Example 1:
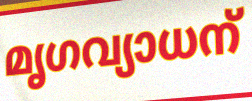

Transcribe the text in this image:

മൃഗവ്യാധന്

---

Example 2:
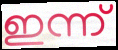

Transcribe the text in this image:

ഇന്ന്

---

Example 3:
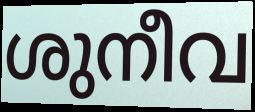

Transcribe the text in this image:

ശുനീവ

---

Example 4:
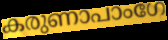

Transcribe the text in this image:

കരുണാപാംഗേ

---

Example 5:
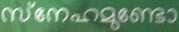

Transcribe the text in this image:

സ്‌നേഹമുണ്ടോ